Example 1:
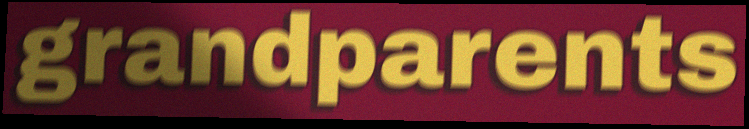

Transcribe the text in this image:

grandparents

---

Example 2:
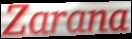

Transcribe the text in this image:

Zarana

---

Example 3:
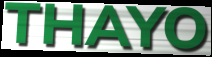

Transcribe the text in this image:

THAYO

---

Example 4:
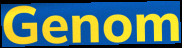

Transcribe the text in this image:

Genom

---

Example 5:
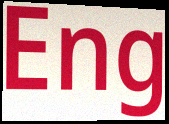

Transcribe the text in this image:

Eng